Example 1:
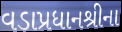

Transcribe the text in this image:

વડાપ્રધાનશ્રીના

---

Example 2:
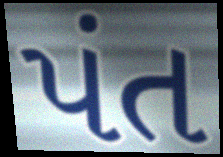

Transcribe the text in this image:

પંત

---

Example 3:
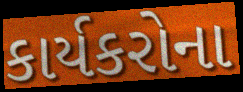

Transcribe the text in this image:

કાર્યકરોના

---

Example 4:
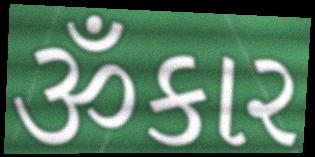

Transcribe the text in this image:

ૐકાર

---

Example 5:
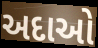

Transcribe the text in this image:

અદાઓ